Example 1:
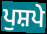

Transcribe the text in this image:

ਪੁਸ਼ਪੇ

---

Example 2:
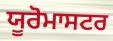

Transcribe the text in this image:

ਯੂਰੋਮਾਸਟਰ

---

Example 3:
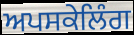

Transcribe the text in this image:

ਅਪਸਕੇਲਿੰਗ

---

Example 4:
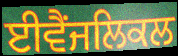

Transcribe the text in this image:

ਈਵੈਂਜਲਿਕਲ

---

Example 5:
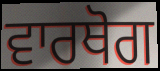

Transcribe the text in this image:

ਵਾਰਥੋਗ